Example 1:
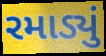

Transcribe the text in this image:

રમાડ્યું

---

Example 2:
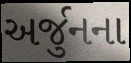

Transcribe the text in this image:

અર્જુનના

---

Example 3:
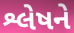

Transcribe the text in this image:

શ્લેષને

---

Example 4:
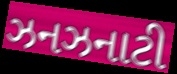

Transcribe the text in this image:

ઝનઝનાટી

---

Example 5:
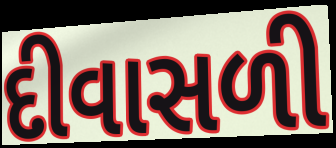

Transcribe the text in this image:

દીવાસળી